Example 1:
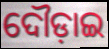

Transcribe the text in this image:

ଦୌଡ଼ାଇ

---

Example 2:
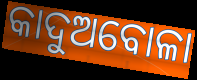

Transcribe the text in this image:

କାଦୁଅବୋଳା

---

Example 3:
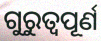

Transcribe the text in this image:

ଗୁରୁତ୍ୱପୂର୍ଣ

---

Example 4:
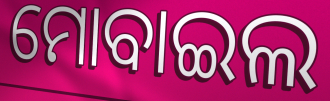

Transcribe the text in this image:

ମୋବାଇଲ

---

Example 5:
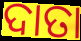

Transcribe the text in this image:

ଦାତା